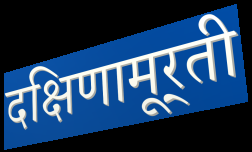
दक्षिणामूर्ती